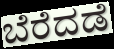
ಬೆರೆದಡೆ